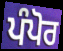
ਪੰਪੋਰ